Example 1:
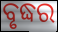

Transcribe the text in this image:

ବୃଦ୍ଧର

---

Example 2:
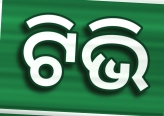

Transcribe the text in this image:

ଟିଭି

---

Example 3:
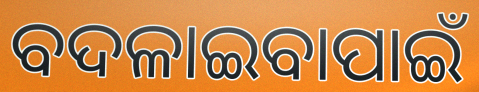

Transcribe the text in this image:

ବଦଳାଇବାପାଇଁ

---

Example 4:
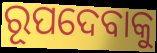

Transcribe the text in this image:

ରୂପଦେବାକୁ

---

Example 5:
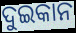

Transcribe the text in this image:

ଦୁଇକାନ